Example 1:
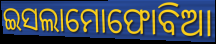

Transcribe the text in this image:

ଇସଲାମୋଫୋବିଆ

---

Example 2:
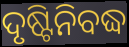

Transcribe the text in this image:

ଦୃଷ୍ଟିନିବଦ୍ଧ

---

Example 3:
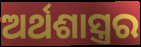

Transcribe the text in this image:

ଅର୍ଥଶାସ୍ତ୍ରର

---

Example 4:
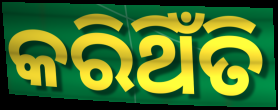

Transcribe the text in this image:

କରିଥିଁତି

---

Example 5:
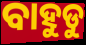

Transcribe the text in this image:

ବାହୁଡୁ